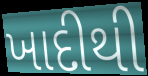
ખાદીથી